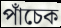
পাঁচেক